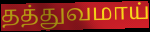
தத்துவமாய்